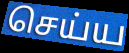
செய்ய